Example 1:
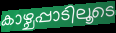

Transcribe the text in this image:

കാഴ്ചപ്പാടിലൂടെ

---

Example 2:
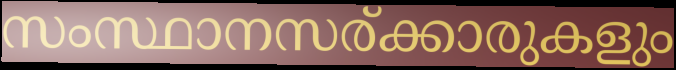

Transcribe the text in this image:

സംസ്ഥാനസര്ക്കാരുകളും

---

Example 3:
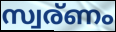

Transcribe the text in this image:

സ്വര്ണം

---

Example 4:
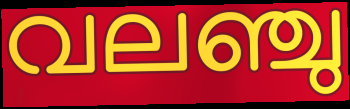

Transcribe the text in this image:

വലഞ്ചു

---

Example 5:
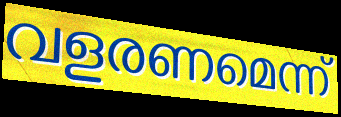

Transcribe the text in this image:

വളരണമെന്ന്